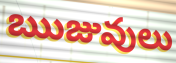
ఋజువులు